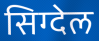
सिग्देल